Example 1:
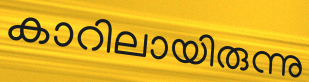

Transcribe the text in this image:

കാറിലായിരുന്നു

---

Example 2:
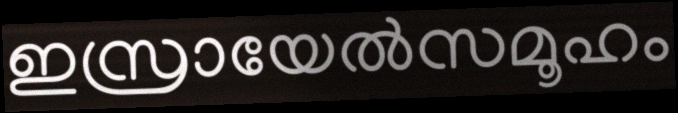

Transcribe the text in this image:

ഇസ്രായേൽസമൂഹം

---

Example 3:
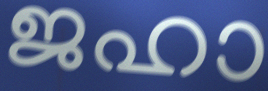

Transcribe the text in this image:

ജഹാ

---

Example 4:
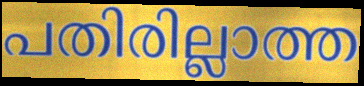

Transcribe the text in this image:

പതിരില്ലാത്ത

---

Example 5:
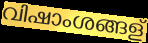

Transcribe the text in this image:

വിഷാംശങ്ങള്